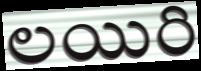
లయిరి